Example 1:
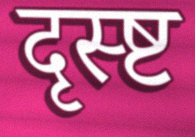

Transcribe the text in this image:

दृस्ष्ट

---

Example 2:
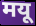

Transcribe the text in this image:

मयू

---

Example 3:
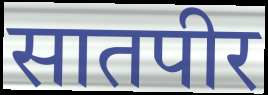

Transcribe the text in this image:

सातपीर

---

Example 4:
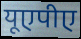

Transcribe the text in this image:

यूएपीए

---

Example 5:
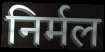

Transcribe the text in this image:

निर्मल